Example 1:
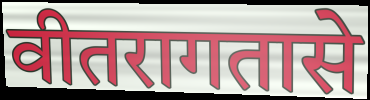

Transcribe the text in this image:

वीतरागतासे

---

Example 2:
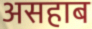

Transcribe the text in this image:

असहाब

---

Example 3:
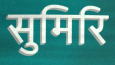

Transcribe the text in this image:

सुमिरि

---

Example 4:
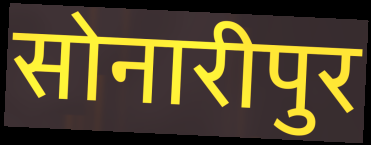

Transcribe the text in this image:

सोनारीपुर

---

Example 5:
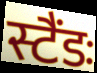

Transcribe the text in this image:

स्टैंडः